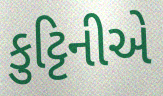
કુટ્ટિનીએ